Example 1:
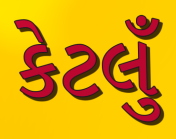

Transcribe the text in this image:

કેટલુઁ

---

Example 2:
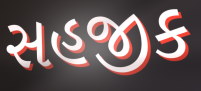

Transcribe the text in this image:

સહજીક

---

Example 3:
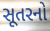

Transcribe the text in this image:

સૂતરનો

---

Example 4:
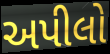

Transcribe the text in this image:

અપીલો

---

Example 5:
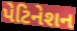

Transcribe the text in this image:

પેટિનેશન